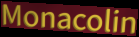
Monacolin